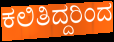
ಕಲಿತಿದ್ದರಿಂದ